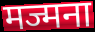
मज्मना